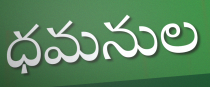
ధమనుల